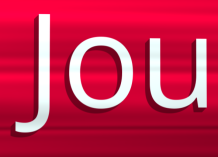
Jou